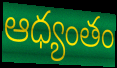
ఆధ్యంతం